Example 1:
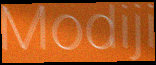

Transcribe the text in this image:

Modiji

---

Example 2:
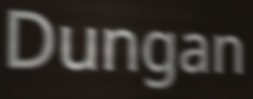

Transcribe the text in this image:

Dungan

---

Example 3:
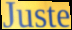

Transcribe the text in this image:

Juste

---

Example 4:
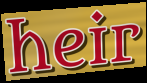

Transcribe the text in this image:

heir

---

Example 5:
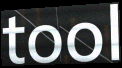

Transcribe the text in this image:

tool